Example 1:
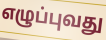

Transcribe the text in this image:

எழுப்புவது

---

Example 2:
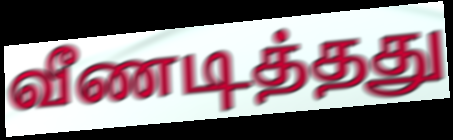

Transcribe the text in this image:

வீணடித்தது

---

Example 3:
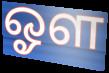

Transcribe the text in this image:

ஓள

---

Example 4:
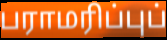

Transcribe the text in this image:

பராமரிப்புப்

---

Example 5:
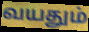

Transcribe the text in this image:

வயதும்